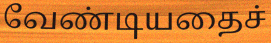
வேண்டியதைச்